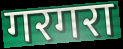
गरगरा